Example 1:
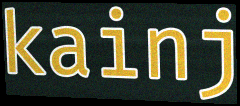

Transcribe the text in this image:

kainj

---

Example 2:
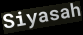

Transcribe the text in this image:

Siyasah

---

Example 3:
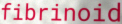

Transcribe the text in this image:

fibrinoid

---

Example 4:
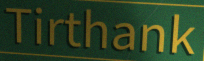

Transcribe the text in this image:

Tirthank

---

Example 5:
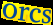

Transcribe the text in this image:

orcs